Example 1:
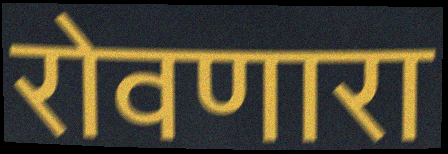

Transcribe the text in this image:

रोवणारा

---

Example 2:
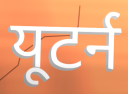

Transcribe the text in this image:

यूटर्न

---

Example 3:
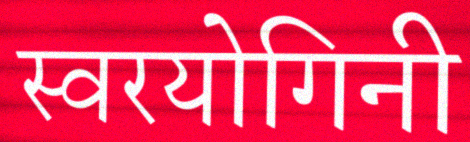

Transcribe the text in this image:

स्वरयोगिनी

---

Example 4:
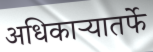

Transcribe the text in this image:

अधिकाऱ्यातर्फे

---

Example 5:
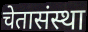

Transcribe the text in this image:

चेतासंस्था